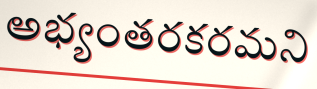
అభ్యంతరకరమని